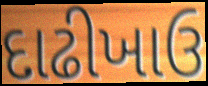
દાઢીખાઉ